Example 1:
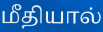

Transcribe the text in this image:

மீதியால்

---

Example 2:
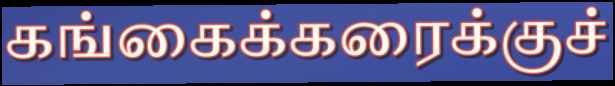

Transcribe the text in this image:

கங்கைக்கரைக்குச்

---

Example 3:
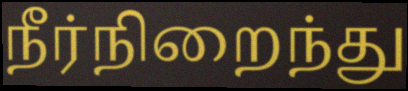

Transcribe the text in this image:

நீர்நிறைந்து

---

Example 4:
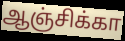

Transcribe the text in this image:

ஆஞ்சிக்கா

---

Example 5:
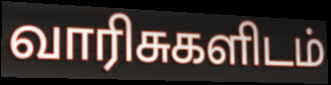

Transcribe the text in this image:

வாரிசுகளிடம்